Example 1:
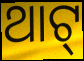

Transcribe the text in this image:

ଥାଟ୍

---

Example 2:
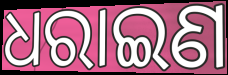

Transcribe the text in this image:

ଧରାଇଣ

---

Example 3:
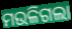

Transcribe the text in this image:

ମଉଳିଗଲା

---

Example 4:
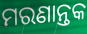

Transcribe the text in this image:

ମରଣାନ୍ତକ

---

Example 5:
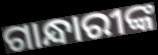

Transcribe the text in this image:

ଗାନ୍ଧାରୀଙ୍କ